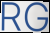
RG